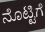
ನೊಟ್ಟಿಗೆ